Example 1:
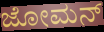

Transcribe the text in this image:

ಜೋಮನ್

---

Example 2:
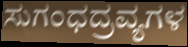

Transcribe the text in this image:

ಸುಗಂಧದ್ರವ್ಯಗಳ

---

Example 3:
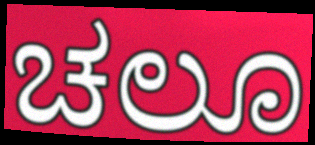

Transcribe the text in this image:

ಚಲೂ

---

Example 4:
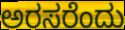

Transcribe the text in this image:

ಅರಸರೆಂದು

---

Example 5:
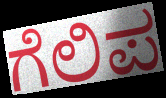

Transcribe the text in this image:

ಗೆಲಿಪ